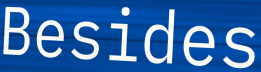
Besides